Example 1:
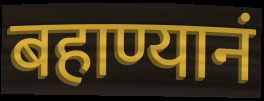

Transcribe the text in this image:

बहाण्यानं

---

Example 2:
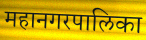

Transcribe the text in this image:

महानगरपालिका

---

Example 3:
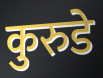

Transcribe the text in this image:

कुरुडे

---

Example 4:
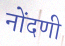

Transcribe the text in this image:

नोंदणी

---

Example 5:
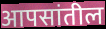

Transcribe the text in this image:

आपसांतील